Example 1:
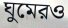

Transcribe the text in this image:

ঘুমেরও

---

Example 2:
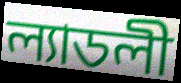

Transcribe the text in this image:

ল্যাডলী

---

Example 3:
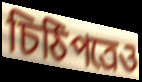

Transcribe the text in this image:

চিঠিপত্রেও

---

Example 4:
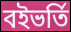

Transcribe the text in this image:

বইভর্তি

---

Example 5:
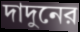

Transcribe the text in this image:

দাদুনের